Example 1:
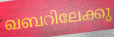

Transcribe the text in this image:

ഖബറിലേക്കു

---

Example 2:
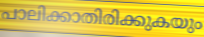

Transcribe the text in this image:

പാലിക്കാതിരിക്കുകയും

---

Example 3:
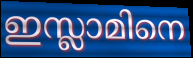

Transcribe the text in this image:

ഇസ്ലാമിനെ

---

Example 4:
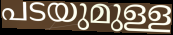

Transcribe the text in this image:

പടയുമുള്ള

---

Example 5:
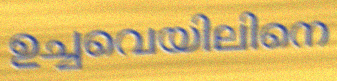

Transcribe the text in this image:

ഉച്ചവെയിലിനെ